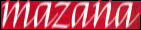
mazana